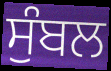
ਸੁੰਬਲ